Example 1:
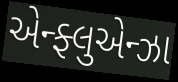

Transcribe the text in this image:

એન્ફ્લુએન્ઝા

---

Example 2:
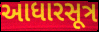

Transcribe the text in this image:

આધારસૂત્ર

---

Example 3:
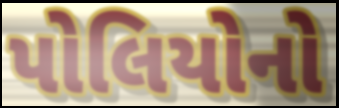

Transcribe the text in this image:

પોલિયોનો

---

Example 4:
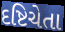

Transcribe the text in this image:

દષ્ટિચેતા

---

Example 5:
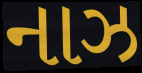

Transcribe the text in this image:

નાઝ